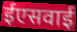
ईएसवाई